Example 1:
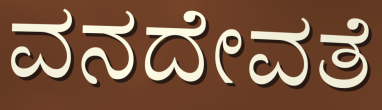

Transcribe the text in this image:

ವನದೇವತೆ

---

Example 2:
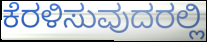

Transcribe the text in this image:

ಕೆರಳಿಸುವುದರಲ್ಲಿ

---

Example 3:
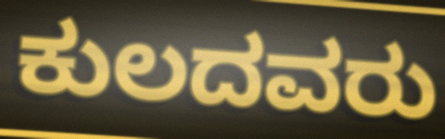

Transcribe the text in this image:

ಕುಲದವರು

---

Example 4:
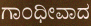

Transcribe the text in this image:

ಗಾಂಧೀವಾದ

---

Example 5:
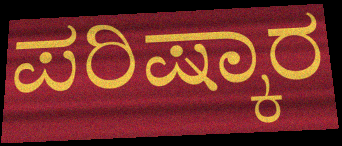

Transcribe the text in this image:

ಪರಿಷ್ಕಾರ